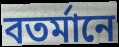
বতর্মানে